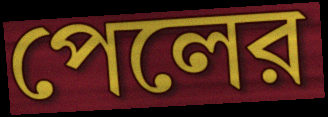
পেলের